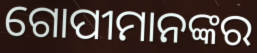
ଗୋପୀମାନଙ୍କର